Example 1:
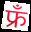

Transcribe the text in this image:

फ्रँ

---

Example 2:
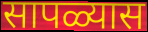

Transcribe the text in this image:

सापळ्यास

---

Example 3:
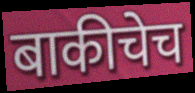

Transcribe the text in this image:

बाकीचेच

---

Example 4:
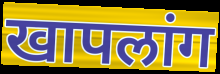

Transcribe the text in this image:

खापलांग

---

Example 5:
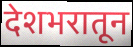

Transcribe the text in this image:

देशभरातून